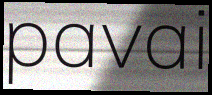
pavai